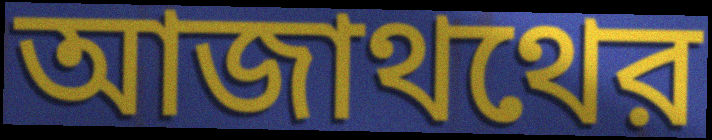
আজাথথের